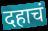
दहाचं